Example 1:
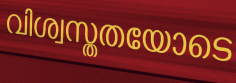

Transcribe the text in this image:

വിശ്വസ്തതയോടെ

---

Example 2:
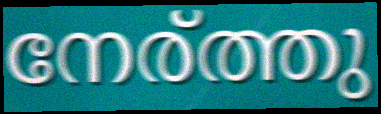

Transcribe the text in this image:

നേര്ത്തു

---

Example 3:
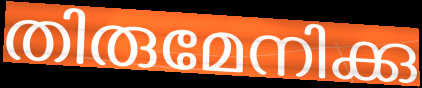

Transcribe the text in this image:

തിരുമേനിക്കു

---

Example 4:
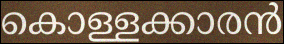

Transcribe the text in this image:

കൊള്ളക്കാരൻ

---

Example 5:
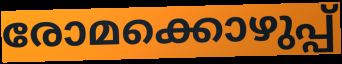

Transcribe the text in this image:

രോമക്കൊഴുപ്പ്